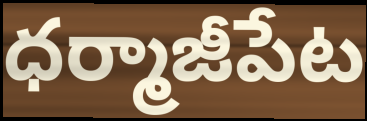
ధర్మాజీపేట